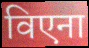
विएना